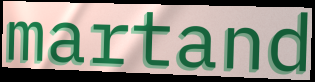
martand